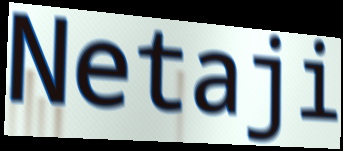
Netaji